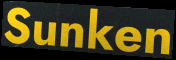
Sunken